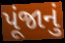
પૂંજાનું